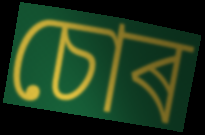
চোৰ